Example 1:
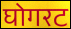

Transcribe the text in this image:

घोगरट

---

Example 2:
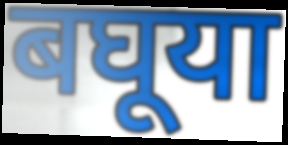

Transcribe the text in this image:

बघूया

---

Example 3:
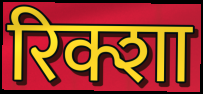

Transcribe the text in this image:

रिक्शा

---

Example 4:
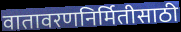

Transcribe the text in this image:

वातावरणनिर्मितीसाठी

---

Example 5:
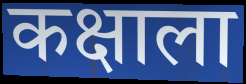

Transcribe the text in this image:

कक्षाला